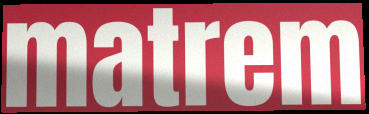
matrem